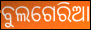
ବୁଲଗେରିଆ